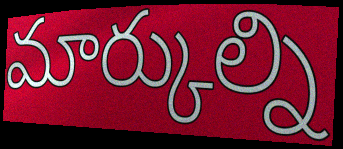
మార్కుల్ని